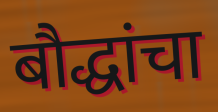
बौद्धांचा